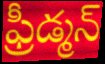
ఫ్రీడ్మన్